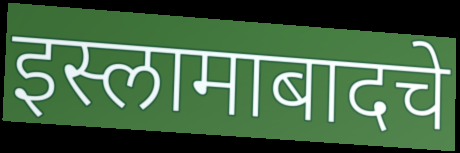
इस्लामाबादचे